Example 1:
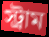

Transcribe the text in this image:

স্ট্রাম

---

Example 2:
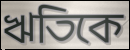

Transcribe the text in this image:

ঋতিকে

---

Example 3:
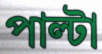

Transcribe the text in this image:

পাল্টা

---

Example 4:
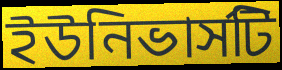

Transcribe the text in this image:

ইউনিভার্সটি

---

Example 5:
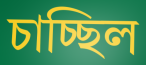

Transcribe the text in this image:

চাচ্ছিল